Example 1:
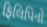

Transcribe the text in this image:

ફિલિપિનો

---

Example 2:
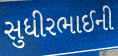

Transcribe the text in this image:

સુધીરભાઈની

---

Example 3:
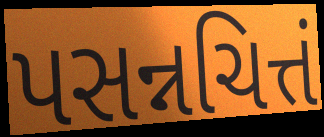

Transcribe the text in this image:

પસન્નચિત્તં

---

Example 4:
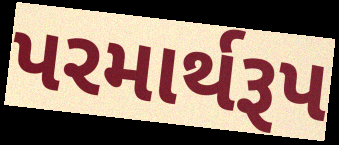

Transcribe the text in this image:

પરમાર્થરૂપ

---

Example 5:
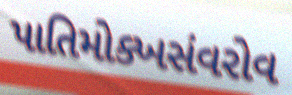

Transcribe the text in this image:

પાતિમોક્ખસંવરોવ